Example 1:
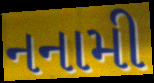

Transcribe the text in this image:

નનામી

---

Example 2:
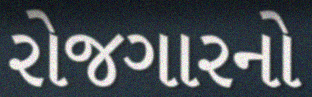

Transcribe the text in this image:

રોજગારનો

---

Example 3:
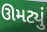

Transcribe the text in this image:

ઊમટ્યું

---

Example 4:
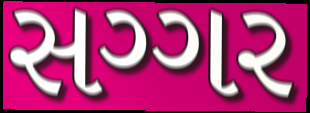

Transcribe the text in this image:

સગ્ગર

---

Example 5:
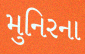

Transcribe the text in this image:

મુનિરના